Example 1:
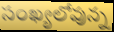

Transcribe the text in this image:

సంఖ్యలోవున్న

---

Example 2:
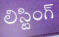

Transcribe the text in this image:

లిస్టింగ్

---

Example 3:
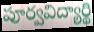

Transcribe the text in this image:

పూర్వవిద్యార్థి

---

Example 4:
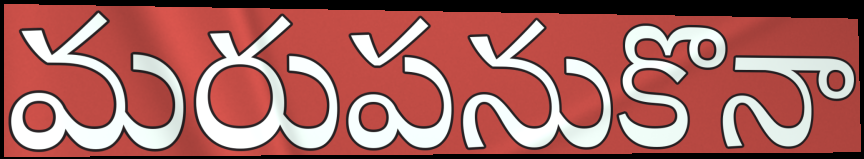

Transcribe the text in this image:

మరుపనుకొనా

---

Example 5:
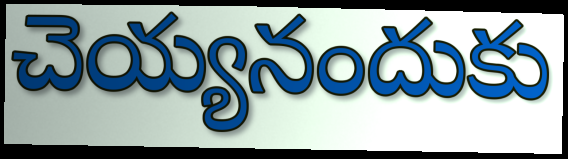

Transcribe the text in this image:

చెయ్యనందుకు